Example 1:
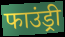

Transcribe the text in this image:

फाउंड्री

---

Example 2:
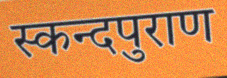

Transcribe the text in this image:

स्कन्दपुराण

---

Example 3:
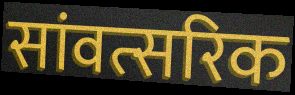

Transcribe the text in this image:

सांवत्सरिक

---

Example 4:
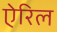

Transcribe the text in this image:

ऐरिल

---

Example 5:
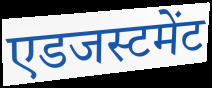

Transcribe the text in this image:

एडजस्‍टमेंट